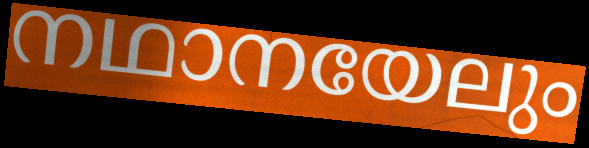
നഥാനയേലും